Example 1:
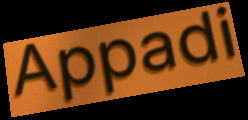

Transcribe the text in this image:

Appadi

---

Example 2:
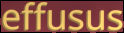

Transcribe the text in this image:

effusus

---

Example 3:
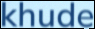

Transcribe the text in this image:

khude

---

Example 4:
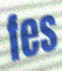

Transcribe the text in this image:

fes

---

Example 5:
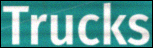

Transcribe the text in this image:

Trucks